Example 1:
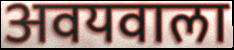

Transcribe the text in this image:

अवयवाला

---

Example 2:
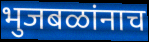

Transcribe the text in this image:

भुजबळांनाच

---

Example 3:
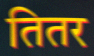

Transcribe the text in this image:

तितर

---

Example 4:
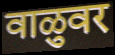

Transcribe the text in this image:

वाळुवर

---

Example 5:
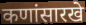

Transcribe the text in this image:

कणांसारखे